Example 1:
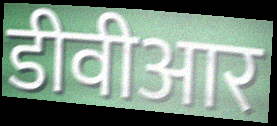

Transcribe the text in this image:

डीवीआर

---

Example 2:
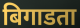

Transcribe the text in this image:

बिगाडता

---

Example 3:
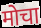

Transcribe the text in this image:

मोचा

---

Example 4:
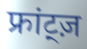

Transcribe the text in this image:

फ्रांट्ज़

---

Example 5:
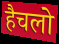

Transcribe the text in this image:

हैचलो